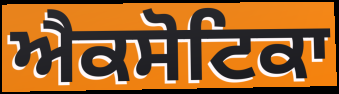
ਐਕਸੋਟਿਕਾ